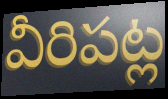
వీరిపట్ల